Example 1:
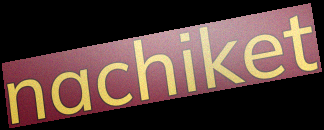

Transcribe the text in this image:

nachiket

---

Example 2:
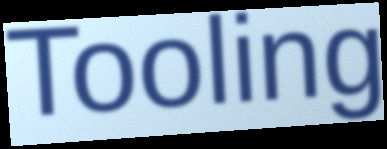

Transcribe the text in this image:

Tooling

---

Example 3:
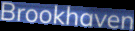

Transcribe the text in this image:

Brookhaven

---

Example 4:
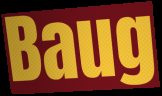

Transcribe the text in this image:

Baug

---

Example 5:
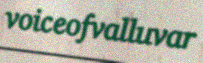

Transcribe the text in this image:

voiceofvalluvar